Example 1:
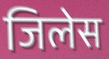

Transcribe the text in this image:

जिलेस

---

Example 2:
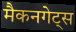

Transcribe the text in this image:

मैकनगेट्स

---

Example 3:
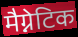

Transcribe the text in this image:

मैग्नेटिक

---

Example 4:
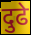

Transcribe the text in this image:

दुढे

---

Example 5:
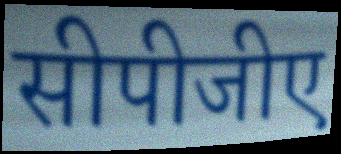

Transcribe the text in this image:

सीपीजीए